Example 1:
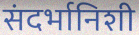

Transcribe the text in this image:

संदर्भानिशी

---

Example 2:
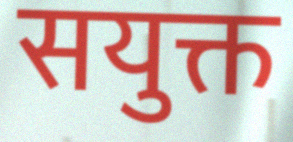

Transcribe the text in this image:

सयुक्त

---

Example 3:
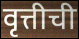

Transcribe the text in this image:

वृत्तीची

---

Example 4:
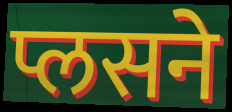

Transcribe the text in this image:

प्लसने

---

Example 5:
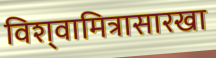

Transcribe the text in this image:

विश्वामित्रासारखा